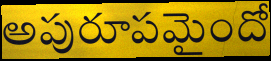
అపురూపమైందో